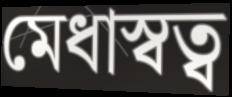
মেধাস্বত্ব